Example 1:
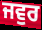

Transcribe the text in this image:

ਜਵੁਰ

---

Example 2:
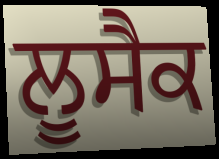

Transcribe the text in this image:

ਲੂਸੈਕ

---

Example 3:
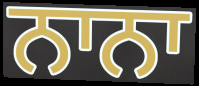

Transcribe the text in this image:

ਨਾਨਾ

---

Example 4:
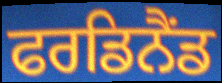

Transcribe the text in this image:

ਫਰਡਿਨੈਂਡ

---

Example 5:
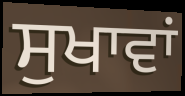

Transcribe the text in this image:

ਸੁਖਾਵਾਂ